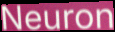
Neuron